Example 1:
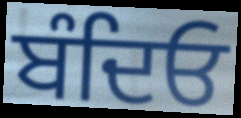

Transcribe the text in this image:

ਬੰਦਿਓ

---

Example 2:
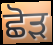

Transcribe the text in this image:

ਛੋੜ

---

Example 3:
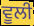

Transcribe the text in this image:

ਵੂਲੀ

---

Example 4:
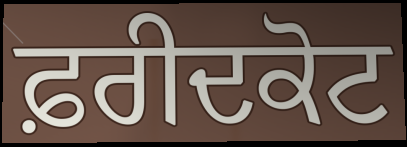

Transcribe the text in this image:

ਫ਼ਰੀਦਕੋਟ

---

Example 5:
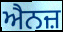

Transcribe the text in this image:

ਐਨਜ਼